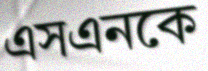
এসএনকে